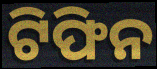
ଟିଫିନ